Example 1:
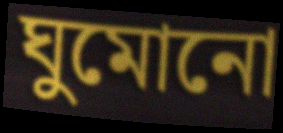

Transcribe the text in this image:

ঘুমোনো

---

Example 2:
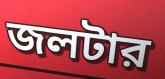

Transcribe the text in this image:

জলটার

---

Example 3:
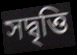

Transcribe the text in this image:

সদ্বৃত্তি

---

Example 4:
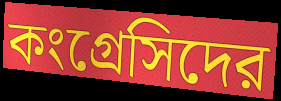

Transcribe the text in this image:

কংগ্রেসিদের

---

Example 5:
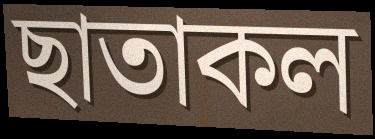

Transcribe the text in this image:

ছাতাকল